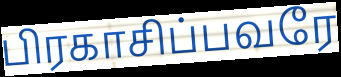
பிரகாசிப்பவரே